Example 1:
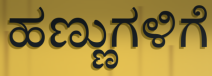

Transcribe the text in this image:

ಹಣ್ಣುಗಳಿಗೆ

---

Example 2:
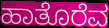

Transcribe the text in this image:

ಹಾತೊರೆವ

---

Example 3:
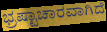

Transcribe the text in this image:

ಭ್ರಷ್ಟಾಚಾರವಾಗಿದೆ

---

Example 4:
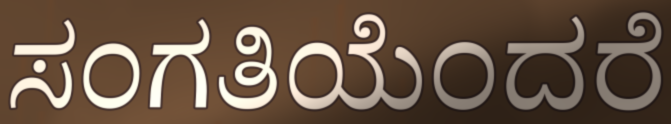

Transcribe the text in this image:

ಸಂಗತಿಯೆಂದರೆ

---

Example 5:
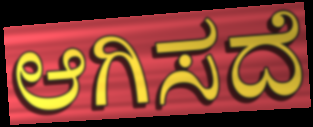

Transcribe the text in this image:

ಆಗಿಸದೆ